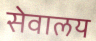
सेवालय